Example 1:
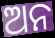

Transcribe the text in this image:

ଅନ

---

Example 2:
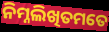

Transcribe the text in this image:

ନିମ୍ନଲିଖିତମତେ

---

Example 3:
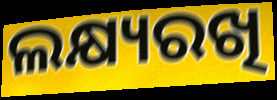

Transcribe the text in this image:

ଲକ୍ଷ୍ୟରଖି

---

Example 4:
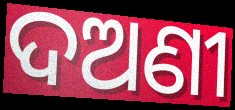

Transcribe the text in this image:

ଦଅଣୀ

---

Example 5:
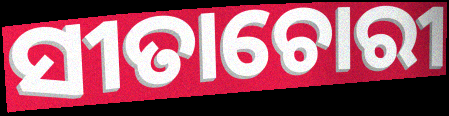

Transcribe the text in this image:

ସୀତାଚୋରୀ